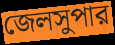
জেলসুপার